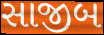
સાજીબ